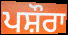
ਪਸ਼ੌਰਾ